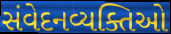
સંવેદનવ્યક્તિઓ